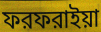
ফরফরাইয়া